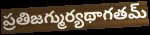
ప్రతిజగ్ముర్యథాగతమ్